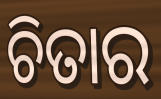
ଚିତାର